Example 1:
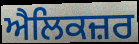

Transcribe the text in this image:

ਐਲਿਕਜ਼ਰ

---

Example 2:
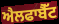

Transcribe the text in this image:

ਐਲਫਾਬੈੱਟ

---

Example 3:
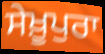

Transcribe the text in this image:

ਸੇਖ਼ੂਪੁਰਾ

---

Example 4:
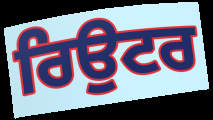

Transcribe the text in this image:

ਰਿਉਟਰ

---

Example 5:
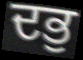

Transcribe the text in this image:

ਦਭੁ